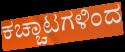
ಕಚ್ಚಾಟಗಳಿಂದ